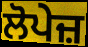
ਲੋਪੇਜ਼